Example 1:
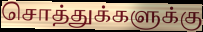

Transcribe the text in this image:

சொத்துக்களுக்கு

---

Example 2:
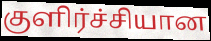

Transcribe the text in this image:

குளிர்ச்சியான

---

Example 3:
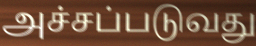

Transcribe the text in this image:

அச்சப்படுவது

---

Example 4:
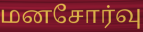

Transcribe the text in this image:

மனசோர்வு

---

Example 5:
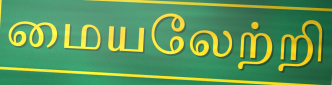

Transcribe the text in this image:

மையலேற்றி